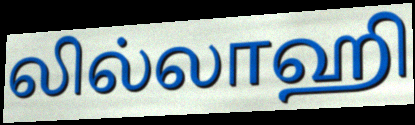
லில்லாஹி